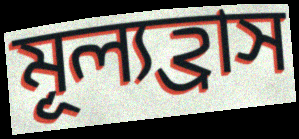
মূল্যহ্রাস